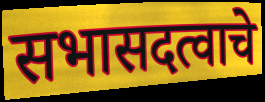
सभासदत्वाचे